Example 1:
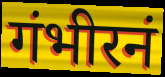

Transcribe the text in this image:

गंभीरनं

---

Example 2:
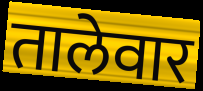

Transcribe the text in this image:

तालेवार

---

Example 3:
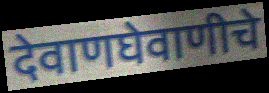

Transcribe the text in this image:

देवाणघेवाणीचे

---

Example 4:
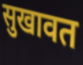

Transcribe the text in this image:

सुखावत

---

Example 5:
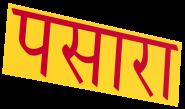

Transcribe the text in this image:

पसारा